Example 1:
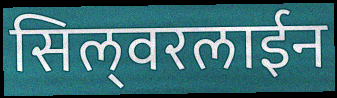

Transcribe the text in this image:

सिल्वरलाईन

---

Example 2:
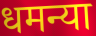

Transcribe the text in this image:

धमन्या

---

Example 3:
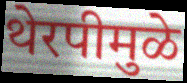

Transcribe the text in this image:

थेरपीमुळे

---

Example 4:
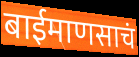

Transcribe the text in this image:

बाईमाणसाचं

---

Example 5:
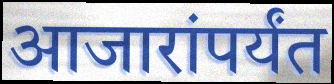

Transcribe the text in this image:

आजारांपर्यंत